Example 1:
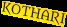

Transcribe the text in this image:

KOTHARI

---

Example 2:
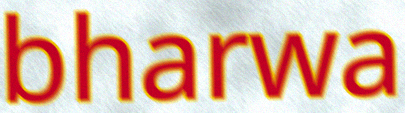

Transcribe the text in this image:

bharwa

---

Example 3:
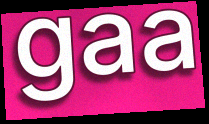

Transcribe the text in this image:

gaa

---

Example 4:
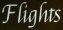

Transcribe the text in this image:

Flights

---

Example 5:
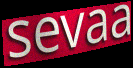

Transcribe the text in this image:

sevaa